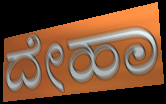
ದೇಹಾ